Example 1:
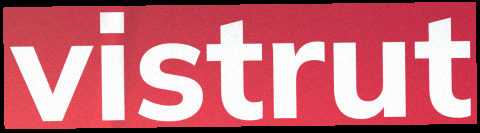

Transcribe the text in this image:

vistrut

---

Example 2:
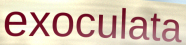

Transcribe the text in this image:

exoculata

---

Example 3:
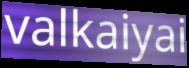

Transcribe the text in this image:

valkaiyai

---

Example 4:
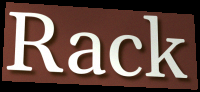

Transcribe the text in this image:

Rack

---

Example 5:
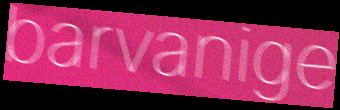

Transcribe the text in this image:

barvanige